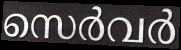
സെർവർ